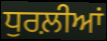
ਧੁਰਲ਼ੀਆਂ